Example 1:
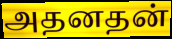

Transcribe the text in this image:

அதனதன்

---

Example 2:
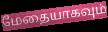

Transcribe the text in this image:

மேதையாகவும்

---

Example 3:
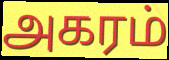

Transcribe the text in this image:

அகரம்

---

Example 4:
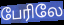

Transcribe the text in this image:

பேரிலே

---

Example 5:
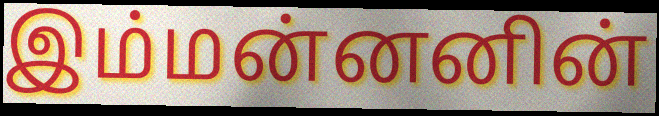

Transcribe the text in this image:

இம்மன்னனின்